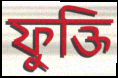
ফুক্তি